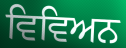
ਵਿਵਿਅਨ